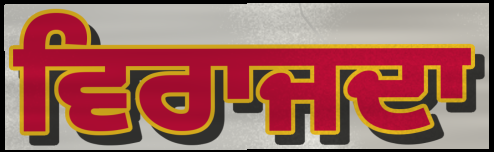
ਵਿਰਾਜਦਾ